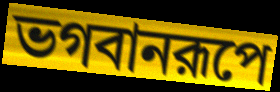
ভগবানরূপে